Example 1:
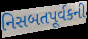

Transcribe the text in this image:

નિસબતપૂર્વકની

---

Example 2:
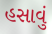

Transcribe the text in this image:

હસાવું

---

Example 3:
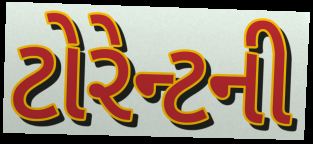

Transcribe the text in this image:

ટોરેન્ટની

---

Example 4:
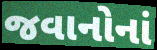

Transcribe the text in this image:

જવાનોનાં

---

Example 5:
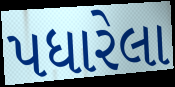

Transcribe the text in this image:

પધારેલા